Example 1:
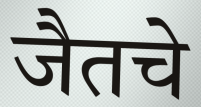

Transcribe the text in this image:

जैतचे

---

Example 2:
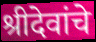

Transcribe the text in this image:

श्रीदेवांचे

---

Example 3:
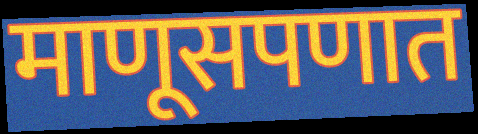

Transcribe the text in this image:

माणूसपणात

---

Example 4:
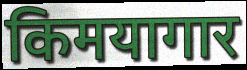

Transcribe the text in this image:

किमयागार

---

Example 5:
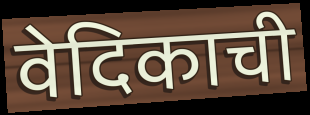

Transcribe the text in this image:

वेदिकाची